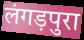
लंगड़पुरा